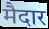
मैदार